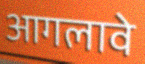
आगलावे